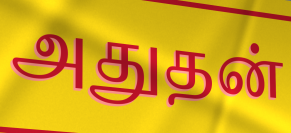
அதுதன்